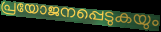
പ്രയോജനപ്പെടുകയും